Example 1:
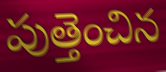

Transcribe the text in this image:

పుత్తెంచిన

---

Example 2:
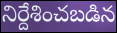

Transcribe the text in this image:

నిర్దేశించబడిన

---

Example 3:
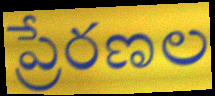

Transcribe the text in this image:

ప్రేరణల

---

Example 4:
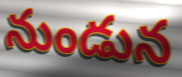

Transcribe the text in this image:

నుండున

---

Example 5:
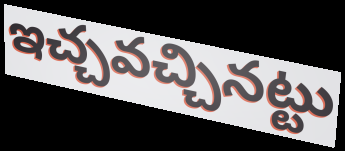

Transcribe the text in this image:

ఇచ్చవచ్చినట్టు